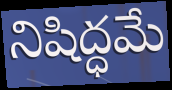
నిషిద్ధమే